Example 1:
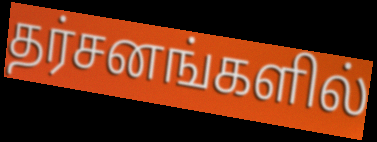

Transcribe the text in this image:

தர்சனங்களில்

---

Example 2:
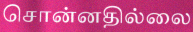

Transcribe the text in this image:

சொன்னதில்லை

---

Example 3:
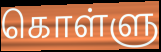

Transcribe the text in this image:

கொள்ளு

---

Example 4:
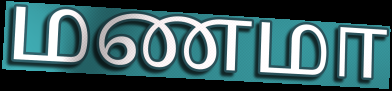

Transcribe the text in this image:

மணமா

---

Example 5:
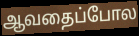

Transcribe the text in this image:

ஆவதைப்போல